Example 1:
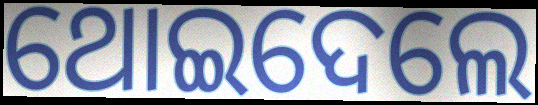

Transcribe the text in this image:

ଥୋଇଦେଲେ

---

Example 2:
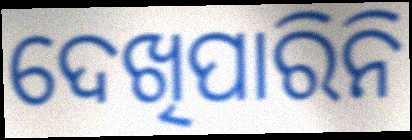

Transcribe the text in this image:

ଦେଖିପାରିନି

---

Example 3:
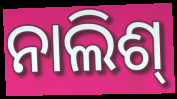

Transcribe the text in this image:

ନାଲିଶ୍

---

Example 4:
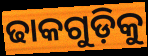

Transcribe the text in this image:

ଢାକଗୁଡ଼ିକୁ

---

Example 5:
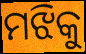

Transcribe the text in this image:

ମଝିକୁ